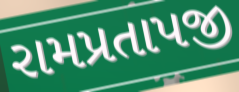
રામપ્રતાપજી